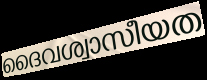
ദൈവശ്വാസീയത